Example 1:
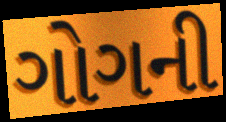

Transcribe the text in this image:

ગોગની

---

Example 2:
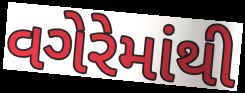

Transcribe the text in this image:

વગેરેમાંથી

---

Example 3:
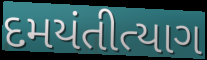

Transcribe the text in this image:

દમયંતીત્યાગ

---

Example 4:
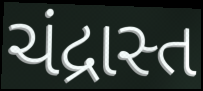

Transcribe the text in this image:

ચંદ્રાસ્ત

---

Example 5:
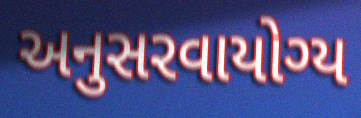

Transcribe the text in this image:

અનુસરવાયોગ્ય